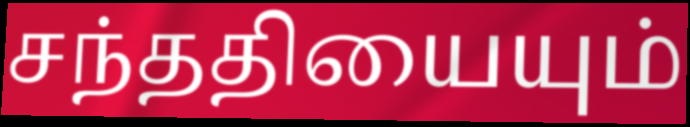
சந்ததியையும்